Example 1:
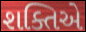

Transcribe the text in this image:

શક્તિએ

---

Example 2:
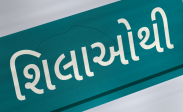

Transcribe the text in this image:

શિલાઓથી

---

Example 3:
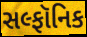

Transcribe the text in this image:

સલ્ફૉનિક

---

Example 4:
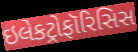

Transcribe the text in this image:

ઇલેકટ્રોફૉરિસિસ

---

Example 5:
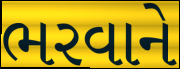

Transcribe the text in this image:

ભરવાને